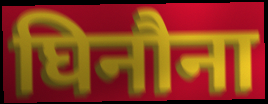
घिनौना